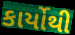
કાર્યોથી